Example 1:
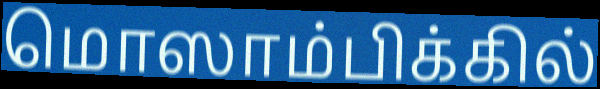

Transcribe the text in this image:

மொஸாம்பிக்கில்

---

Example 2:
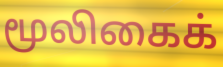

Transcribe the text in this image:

மூலிகைக்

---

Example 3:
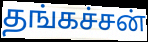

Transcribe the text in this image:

தங்கச்சன்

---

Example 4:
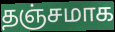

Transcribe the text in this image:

தஞ்சமாக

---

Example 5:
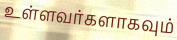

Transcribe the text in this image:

உள்ளவர்களாகவும்